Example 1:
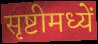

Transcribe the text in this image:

सृष्टीमध्यें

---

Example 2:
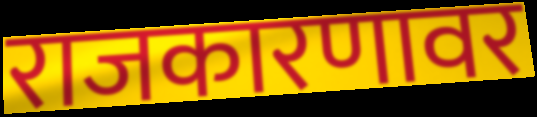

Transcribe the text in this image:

राजकारणावर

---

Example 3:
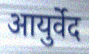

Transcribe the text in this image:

आयुर्वेद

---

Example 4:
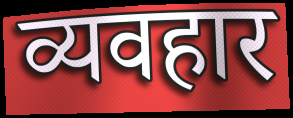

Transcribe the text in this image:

व्यवहार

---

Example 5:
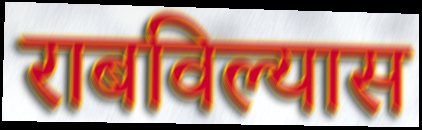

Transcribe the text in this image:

राबविल्यास